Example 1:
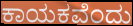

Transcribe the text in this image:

ಕಾಯಕವೆಂದು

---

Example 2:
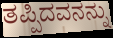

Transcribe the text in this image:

ತಪ್ಪಿದವನನ್ನು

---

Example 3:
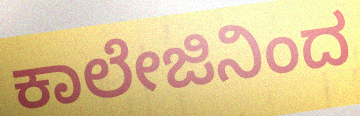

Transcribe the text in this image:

ಕಾಲೇಜಿನಿಂದ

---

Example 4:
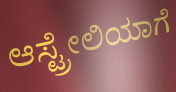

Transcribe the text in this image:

ಆಸ್ಟ್ರೇಲಿಯಾಗೆ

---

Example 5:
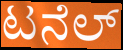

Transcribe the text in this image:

ಟನೆಲ್